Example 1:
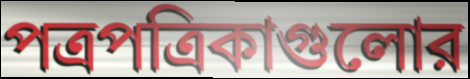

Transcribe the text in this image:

পত্রপত্রিকাগুলোর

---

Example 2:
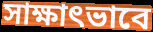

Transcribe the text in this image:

সাক্ষাৎভাবে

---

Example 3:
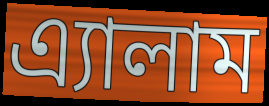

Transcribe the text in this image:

এ্যালাম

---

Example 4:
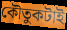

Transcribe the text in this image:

কৌতুকটাই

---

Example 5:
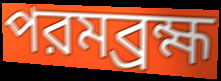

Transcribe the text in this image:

পরমব্রহ্ম